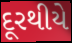
દૂરથીયે